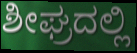
ಶೀಘ್ರದಲ್ಲಿ